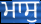
ਮਾਸੁ